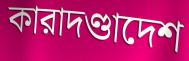
কারাদণ্ডাদেশ